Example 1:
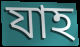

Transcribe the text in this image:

যাহ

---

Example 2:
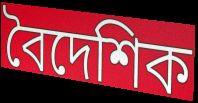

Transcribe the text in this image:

বৈদেশিক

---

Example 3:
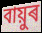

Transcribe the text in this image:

বায়ুৰ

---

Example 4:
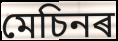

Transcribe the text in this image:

মেচিনৰ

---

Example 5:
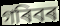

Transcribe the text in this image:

গৰিবৰ